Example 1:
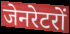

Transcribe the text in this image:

जेनरेटरों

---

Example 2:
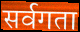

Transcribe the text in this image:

सर्वगता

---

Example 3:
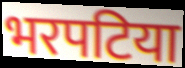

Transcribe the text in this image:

भरपटिया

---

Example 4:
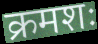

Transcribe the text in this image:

क्रमशः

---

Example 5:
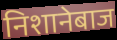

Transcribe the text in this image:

निशानेबाज